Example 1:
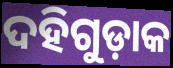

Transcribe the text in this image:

ଦହିଗୁଡ଼ାକ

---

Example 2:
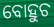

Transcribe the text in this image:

ବୋହୁଚ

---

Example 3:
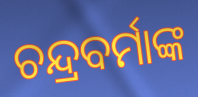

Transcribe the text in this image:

ଚନ୍ଦ୍ରବର୍ମାଙ୍କ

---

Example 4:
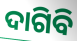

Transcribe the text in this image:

ଦାଗିବି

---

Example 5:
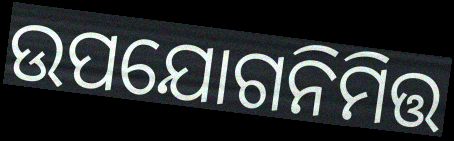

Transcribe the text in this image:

ଉପଯୋଗନିମିତ୍ତ